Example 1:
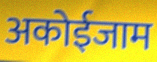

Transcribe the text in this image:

अकोईजाम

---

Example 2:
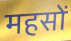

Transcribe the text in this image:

महसों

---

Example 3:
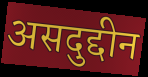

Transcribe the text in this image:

असदुद्दीन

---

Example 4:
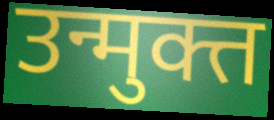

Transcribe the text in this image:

उन्मुक्त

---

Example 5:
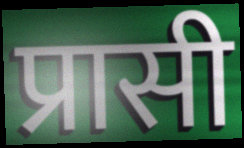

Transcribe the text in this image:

प्रासी